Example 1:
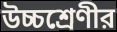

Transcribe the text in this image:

উচ্চশ্রেণীর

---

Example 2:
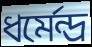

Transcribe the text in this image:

ধর্মেন্দ্র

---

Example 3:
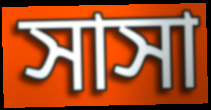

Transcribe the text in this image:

সাসা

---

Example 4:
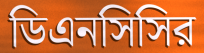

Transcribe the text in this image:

ডিএনসিসির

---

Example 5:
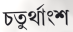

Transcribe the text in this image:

চতুর্থাংশ